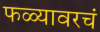
फळ्यावरचं